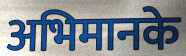
अभिमानके